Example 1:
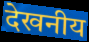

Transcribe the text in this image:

देखनीय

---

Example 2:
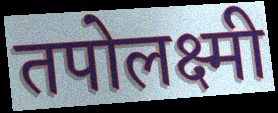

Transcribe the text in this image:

तपोलक्ष्मी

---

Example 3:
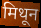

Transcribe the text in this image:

मिथून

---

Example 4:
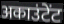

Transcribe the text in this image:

अकाउंटेंट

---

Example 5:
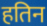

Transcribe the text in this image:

हतिन